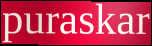
puraskar